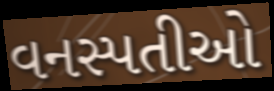
વનસ્પતીઓ